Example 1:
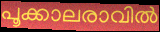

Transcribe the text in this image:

പൂക്കാലരാവിൽ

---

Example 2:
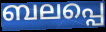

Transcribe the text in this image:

ബലപ്പെ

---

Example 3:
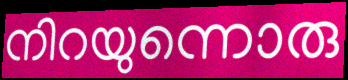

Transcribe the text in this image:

നിറയുന്നൊരു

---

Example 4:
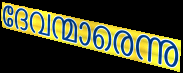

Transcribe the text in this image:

ദേവന്മാരെന്നു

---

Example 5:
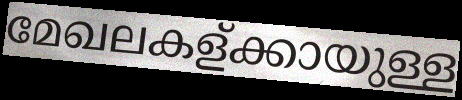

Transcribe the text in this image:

മേഖലകള്ക്കായുള്ള